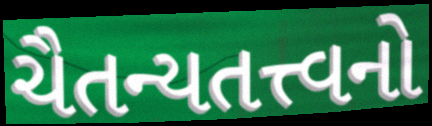
ચૈતન્યતત્ત્વનો